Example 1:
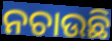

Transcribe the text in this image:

ନଚାଉଛି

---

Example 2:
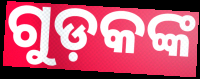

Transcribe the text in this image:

ଗୁଡ଼କଙ୍କ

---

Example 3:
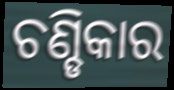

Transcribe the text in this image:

ଚଣ୍ଡିକାର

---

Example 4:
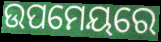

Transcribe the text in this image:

ଉପମେୟରେ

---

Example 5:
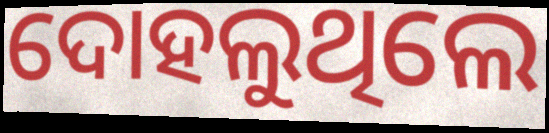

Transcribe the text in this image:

ଦୋହଲୁଥିଲେ